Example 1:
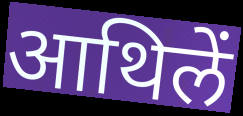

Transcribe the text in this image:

आथिलें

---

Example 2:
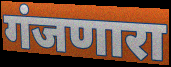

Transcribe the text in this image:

गंजणारा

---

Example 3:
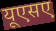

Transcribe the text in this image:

यूएसए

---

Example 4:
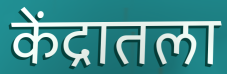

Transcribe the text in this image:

केंद्रातला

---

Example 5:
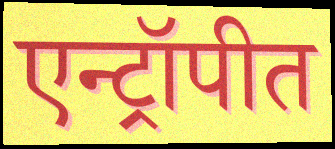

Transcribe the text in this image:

एन्ट्रॉपीत